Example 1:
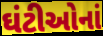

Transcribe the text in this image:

ઘંટીઓનાં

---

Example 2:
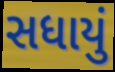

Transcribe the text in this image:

સધાયું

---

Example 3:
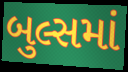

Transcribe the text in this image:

બુલ્સમાં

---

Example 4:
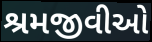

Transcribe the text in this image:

શ્રમજીવીઓ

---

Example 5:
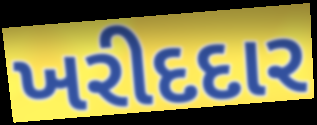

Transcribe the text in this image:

ખરીદદાર